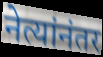
नेत्यांनंतर